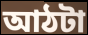
আঠটা